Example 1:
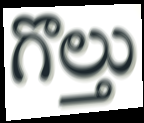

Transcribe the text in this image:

గొల్తు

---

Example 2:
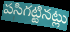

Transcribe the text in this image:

పసిగట్టినట్లు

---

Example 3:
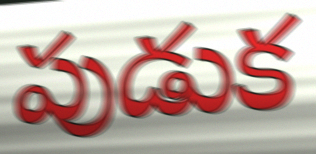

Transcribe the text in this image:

పుడుక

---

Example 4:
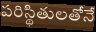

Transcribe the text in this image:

పరిస్థితులతోనే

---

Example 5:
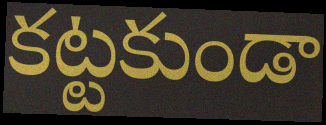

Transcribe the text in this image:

కట్టకుండా